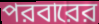
পরবারের